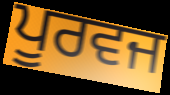
ਪੂਰਵਜ